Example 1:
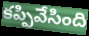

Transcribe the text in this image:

కప్పివేసింది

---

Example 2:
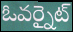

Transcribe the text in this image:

ఓవర్నైట్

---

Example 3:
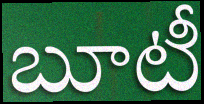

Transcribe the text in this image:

బూటీ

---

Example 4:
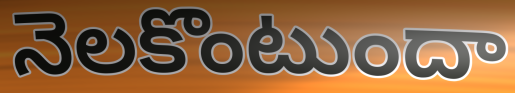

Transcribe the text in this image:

నెలకొంటుందా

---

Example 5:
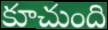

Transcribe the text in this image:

కూచుంది